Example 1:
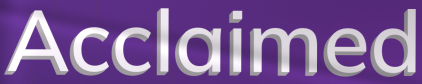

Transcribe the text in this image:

Acclaimed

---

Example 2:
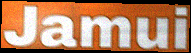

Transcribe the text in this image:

Jamui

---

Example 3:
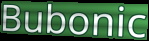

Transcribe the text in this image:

Bubonic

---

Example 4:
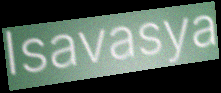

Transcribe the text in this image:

Isavasya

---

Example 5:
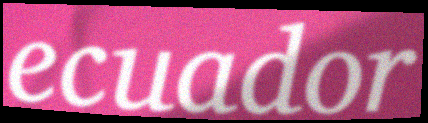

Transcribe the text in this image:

ecuador